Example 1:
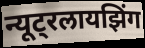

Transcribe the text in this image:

न्यूट्रलायझिंग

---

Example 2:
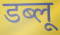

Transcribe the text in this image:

डब्लू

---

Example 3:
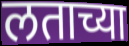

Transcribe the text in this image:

लताच्या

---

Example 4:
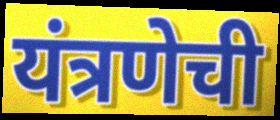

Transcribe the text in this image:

यंत्रणेची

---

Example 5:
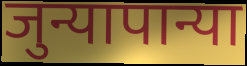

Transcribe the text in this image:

जुन्यापान्या